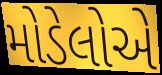
મોડેલોએ